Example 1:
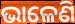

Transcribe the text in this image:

ଭାଳେଣି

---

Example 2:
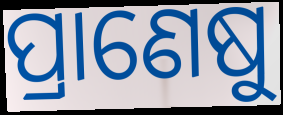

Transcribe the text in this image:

ପ୍ରାଣେଷୁ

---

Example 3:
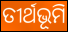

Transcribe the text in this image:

ତୀର୍ଥଭୂମି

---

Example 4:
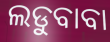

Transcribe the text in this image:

ଲଡୁବାବା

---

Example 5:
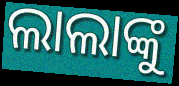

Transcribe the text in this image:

ଲାଲାଙ୍କୁ